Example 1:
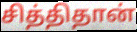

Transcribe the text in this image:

சித்திதான்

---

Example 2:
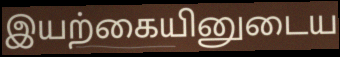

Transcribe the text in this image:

இயற்கையினுடைய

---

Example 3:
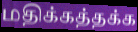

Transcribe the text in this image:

மதிக்கத்தக்க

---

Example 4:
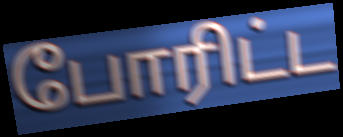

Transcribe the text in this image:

போரிட்ட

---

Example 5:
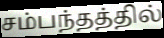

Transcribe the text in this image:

சம்பந்தத்தில்